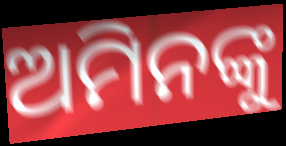
ଅମିନଙ୍କୁ